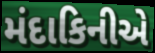
મંદાકિનીએ